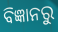
ବିଜ୍ଞାନରୁ